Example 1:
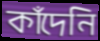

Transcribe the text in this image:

কাঁদেনি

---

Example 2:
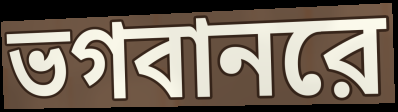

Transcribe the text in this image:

ভগবানরে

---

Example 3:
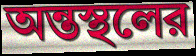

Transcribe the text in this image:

অন্তস্থলের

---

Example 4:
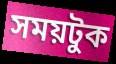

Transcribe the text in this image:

সময়টুক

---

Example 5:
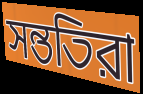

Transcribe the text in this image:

সন্ততিরা